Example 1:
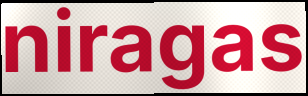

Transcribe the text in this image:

niragas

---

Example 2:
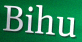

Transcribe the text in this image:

Bihu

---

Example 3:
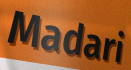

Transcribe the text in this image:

Madari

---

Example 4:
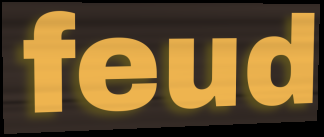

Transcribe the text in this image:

feud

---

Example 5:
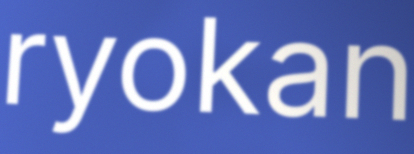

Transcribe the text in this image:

ryokan